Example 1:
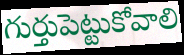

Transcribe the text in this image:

గుర్తుపెట్టుకోవాలి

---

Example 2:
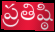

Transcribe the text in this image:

ప్రతిష్ఠి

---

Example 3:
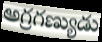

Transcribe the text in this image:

అగ్రగణ్యుడు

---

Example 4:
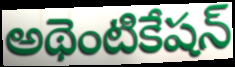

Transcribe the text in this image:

అథెంటికేషన్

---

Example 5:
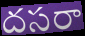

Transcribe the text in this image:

దసరా